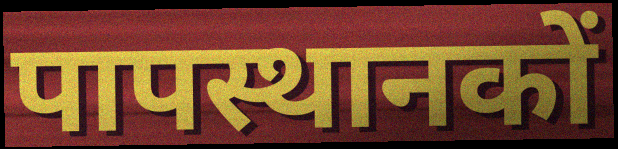
पापस्थानकों